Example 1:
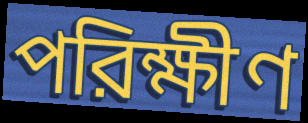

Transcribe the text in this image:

পরিক্ষীণ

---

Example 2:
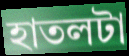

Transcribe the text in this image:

হাতলটা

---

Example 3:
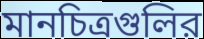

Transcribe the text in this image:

মানচিত্রগুলির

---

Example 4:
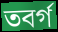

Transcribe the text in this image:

তবর্গ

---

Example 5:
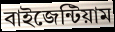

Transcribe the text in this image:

বাইজেন্টিয়াম